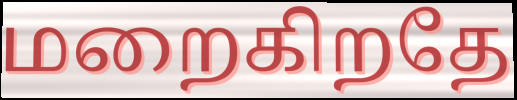
மறைகிறதே